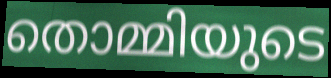
തൊമ്മിയുടെ